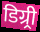
डिग्र्री